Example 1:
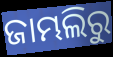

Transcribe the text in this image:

ଜାମ୍ଭଲିରୁ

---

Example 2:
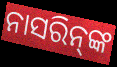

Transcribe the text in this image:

ନାସରିନ୍‌ଙ୍କ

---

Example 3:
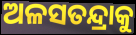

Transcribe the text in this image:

ଅଳସତନ୍ଦ୍ରାକୁ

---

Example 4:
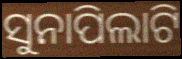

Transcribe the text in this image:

ସୁନାପିଲାଟି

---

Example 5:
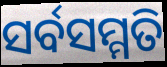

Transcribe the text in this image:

ସର୍ବସମ୍ମତି